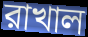
রাখাল